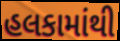
હલકામાંથી